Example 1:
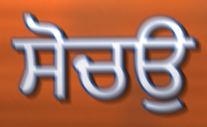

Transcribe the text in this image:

ਸੋਚਉ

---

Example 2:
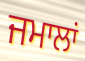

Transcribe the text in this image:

ਜਮਾਲਾਂ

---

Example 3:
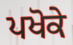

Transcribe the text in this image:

ਪਖੋਕੇ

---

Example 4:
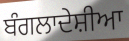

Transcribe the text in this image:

ਬੰਗਲਾਦੇਸ਼ੀਆ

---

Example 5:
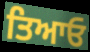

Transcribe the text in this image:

ਤਿਆਓ